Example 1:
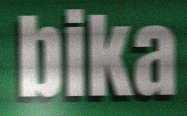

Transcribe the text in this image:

bika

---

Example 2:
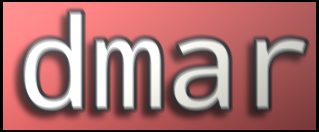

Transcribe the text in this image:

dmar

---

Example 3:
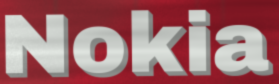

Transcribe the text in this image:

Nokia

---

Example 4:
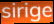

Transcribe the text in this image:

sirige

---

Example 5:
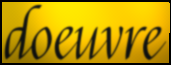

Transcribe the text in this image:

doeuvre